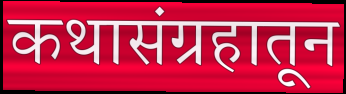
कथासंग्रहातून